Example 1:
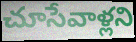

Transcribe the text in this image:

చూసేవాళ్లని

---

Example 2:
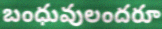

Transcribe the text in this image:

బంధువులందరూ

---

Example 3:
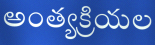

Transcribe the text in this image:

అంత్యక్రియల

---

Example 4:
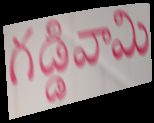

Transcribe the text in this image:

గడ్డివామి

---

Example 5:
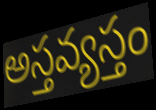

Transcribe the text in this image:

అస్తవ్యస్తం